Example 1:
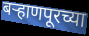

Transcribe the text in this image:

बऱ्हाणपूरच्या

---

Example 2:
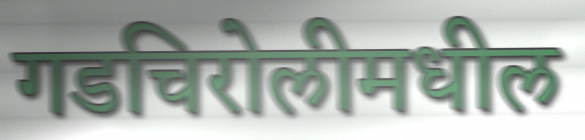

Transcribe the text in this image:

गडचिरोलीमधील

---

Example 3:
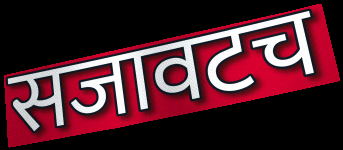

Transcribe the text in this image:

सजावटच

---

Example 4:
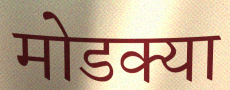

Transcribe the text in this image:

मोडक्या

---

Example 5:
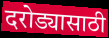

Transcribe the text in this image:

दरोड्यासाठी